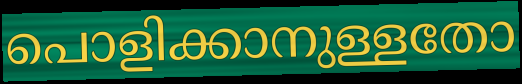
പൊളിക്കാനുള്ളതോ